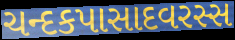
ચન્દકપાસાદવરસ્સ